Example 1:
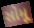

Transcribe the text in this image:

સોમૂ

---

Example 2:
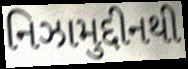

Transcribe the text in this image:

નિઝામુદ્દીનથી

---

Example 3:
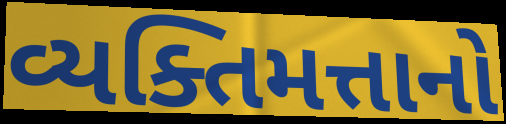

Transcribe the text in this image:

વ્યક્તિમત્તાનો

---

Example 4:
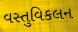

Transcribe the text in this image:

વસ્તુવિકલન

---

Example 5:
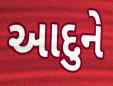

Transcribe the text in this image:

આદુને